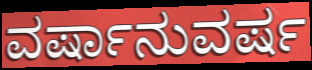
ವರ್ಷಾನುವರ್ಷ